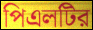
পিএলটির